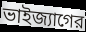
ভাইজ্যাগের